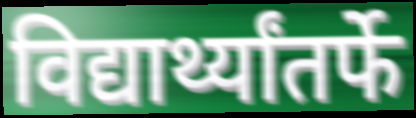
विद्यार्थ्यांतर्फे